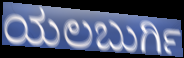
ಯಲಬುರ್ಗಿ